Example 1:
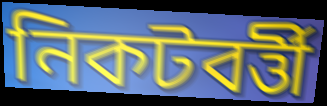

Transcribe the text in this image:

নিকটবর্ত্তী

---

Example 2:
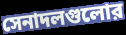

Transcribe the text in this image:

সেনাদলগুলোর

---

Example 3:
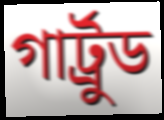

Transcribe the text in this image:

গার্ট্রুড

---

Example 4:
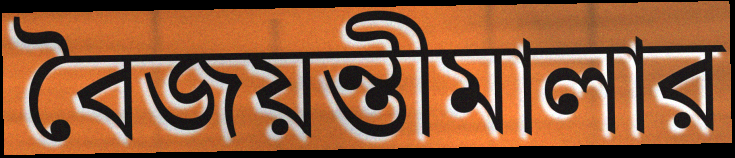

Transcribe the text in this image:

বৈজয়ন্তীমালার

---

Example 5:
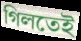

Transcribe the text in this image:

গিলতেই